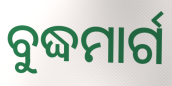
ବୁଦ୍ଧମାର୍ଗ